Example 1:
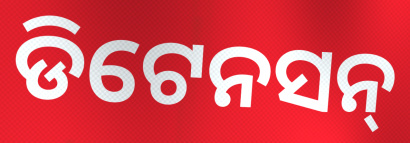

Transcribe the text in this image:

ଡିଟେନସନ୍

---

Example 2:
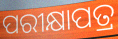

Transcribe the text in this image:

ପରୀକ୍ଷାପତ୍ର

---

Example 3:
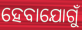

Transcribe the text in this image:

ହେବାଯୋଗୁଁ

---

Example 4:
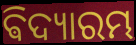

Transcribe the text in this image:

ଵିଦ୍ୟାରମ୍ଭ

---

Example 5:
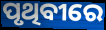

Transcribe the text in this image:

ପୃଥିବୀରେ